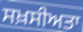
ਸਖ਼ਸੀਅਤਾ